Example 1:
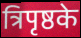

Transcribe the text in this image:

त्रिपृष्ठके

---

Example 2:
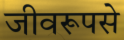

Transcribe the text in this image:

जीवरूपसे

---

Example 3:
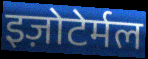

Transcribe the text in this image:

इज़ोटेर्मल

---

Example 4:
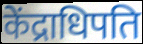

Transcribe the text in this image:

केंद्राधिपति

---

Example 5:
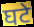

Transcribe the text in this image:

घटे